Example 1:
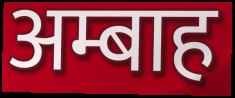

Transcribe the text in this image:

अम्बाह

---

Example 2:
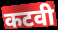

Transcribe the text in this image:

कटवी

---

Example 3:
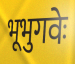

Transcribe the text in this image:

भूभुगवेः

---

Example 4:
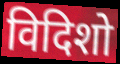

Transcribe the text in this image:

विदिशो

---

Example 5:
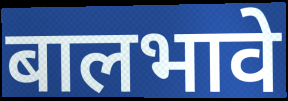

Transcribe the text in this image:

बालभावे